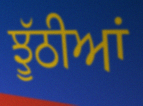
ਝੂੱਠੀਆਂ